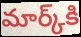
మార్క్‌కి